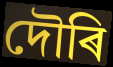
দৌৰি